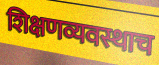
शिक्षणव्यवस्थाच